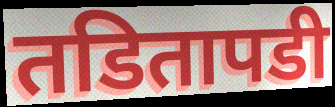
तडितापडी